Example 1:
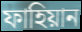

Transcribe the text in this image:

ফাহিয়ান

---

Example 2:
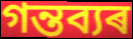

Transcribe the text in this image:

গন্তব্যৰ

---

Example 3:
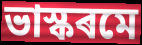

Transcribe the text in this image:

ভাস্কৰমে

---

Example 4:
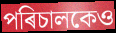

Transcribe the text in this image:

পৰিচালকেও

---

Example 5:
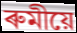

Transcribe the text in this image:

ৰুমীয়ে